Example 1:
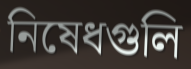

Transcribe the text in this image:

নিষেধগুলি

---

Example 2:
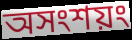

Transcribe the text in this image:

অসংশয়ং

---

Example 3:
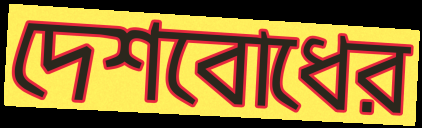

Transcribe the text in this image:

দেশবোধের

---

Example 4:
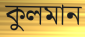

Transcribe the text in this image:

কুলমান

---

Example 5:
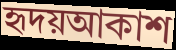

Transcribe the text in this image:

হৃদয়আকাশ